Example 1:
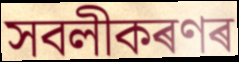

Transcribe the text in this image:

সবলীকৰণৰ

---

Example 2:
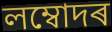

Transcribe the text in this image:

লম্বোদৰ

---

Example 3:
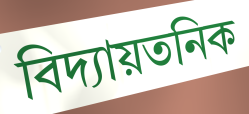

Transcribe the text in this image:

বিদ্যায়তনিক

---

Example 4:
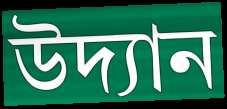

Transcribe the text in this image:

উদ্যান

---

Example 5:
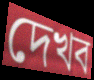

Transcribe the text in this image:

দেখব